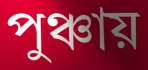
পুঞ্চায়